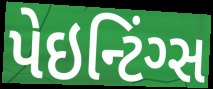
પેઇન્ટિંગ્સ